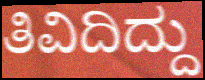
ತಿವಿದಿದ್ದು